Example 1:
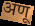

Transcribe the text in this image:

अणू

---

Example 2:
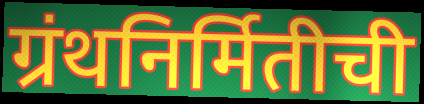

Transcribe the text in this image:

ग्रंथनिर्मितीची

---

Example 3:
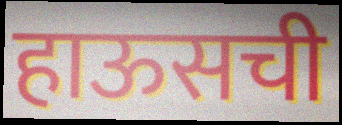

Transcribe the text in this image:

हाऊसची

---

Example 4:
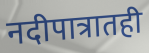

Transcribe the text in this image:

नदीपात्रातही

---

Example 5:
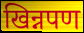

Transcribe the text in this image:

खिन्नपण